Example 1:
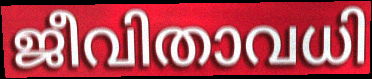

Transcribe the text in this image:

ജീവിതാവധി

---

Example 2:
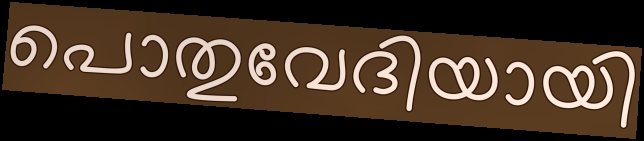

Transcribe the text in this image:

പൊതുവേദിയായി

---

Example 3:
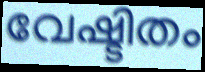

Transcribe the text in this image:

വേഷ്ടിതം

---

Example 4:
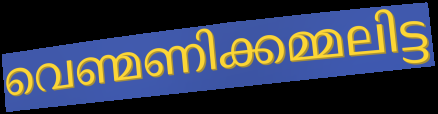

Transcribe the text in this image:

വെണ്മണിക്കമ്മലിട്ട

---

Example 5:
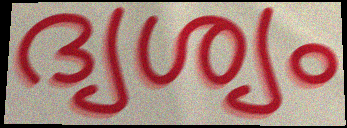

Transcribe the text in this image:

ദ്യശ്യം